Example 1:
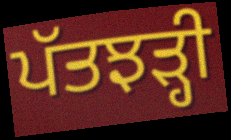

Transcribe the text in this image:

ਪੱਤਝੜ੍ਹੀ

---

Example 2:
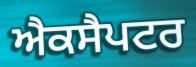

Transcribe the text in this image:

ਐਕਸੈਪਟਰ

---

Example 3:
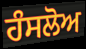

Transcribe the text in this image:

ਹੰਸਲੋਅ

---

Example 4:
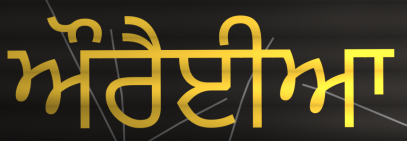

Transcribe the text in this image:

ਔਰੈਈਆ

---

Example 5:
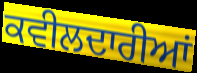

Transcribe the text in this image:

ਕਵੀਲਦਾਰੀਆਂ